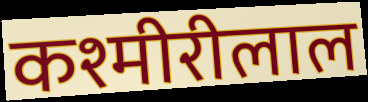
कश्मीरीलाल